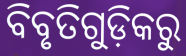
ବିବୃତିଗୁଡ଼ିକରୁ